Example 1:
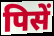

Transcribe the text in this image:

पिसें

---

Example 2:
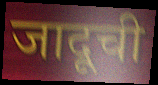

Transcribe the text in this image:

जादूची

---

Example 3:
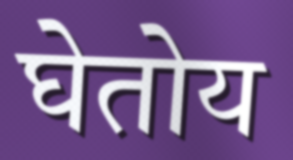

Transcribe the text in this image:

घेतोय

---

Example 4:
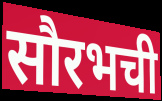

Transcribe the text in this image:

सौरभची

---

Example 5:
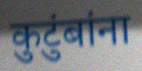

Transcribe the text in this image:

कुटुंबांना